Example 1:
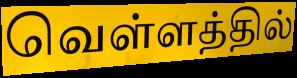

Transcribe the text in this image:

வெள்ளத்தில்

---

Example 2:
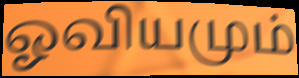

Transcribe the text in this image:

ஓவியமும்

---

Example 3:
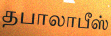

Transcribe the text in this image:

தபாலாபீஸ்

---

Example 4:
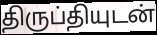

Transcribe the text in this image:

திருப்தியுடன்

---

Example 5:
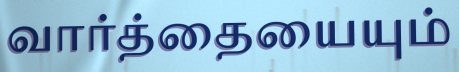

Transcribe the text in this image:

வார்த்தையையும்